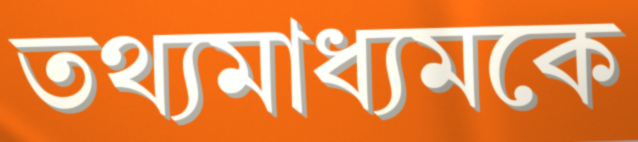
তথ্যমাধ্যমকে